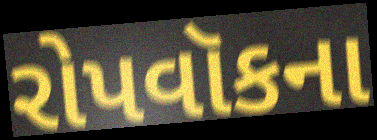
રોપવૉકના